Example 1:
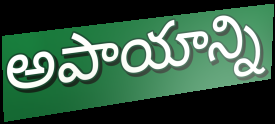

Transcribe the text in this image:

అపాయాన్ని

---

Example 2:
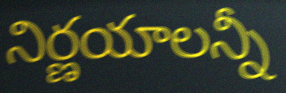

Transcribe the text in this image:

నిర్ణయాలన్నీ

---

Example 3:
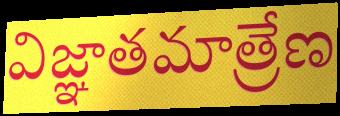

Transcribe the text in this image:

విజ్ఞాతమాత్రేణ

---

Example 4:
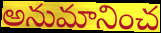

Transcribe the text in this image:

అనుమానించ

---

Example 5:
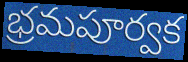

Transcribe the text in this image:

భ్రమపూర్వక